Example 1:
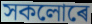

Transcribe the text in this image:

সকলোৰে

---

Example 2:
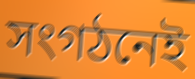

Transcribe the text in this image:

সংগঠনেই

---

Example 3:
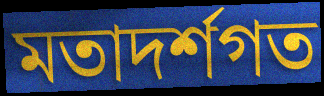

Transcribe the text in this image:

মতাদৰ্শগত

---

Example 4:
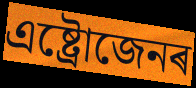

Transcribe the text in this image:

এষ্ট্ৰোজেনৰ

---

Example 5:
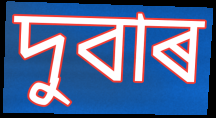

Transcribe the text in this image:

দুবাৰ